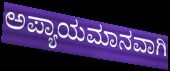
ಅಪ್ಯಾಯಮಾನವಾಗಿ